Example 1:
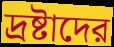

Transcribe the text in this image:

দ্রষ্টাদের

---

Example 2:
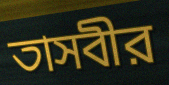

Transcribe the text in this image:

তাসবীর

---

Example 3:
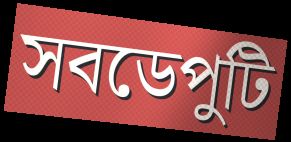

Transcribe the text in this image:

সবডেপুটি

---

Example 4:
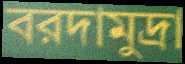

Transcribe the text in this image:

বরদামুদ্রা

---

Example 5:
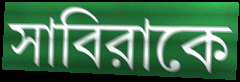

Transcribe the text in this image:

সাবিরাকে